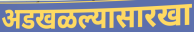
अडखळल्यासारखा